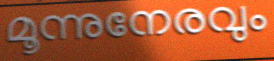
മൂന്നുനേരവും